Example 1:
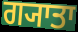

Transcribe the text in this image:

ਗ੍ਯਾਤਾ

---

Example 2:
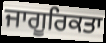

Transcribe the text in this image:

ਜਾਗੂਰਿਕਤਾ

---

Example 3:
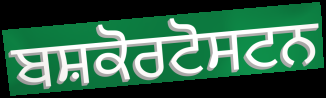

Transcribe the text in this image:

ਬਸ਼ਕੋਰਟੋਸਟਨ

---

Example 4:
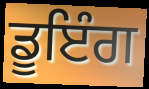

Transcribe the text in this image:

ਡੂਇੰਗ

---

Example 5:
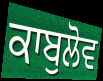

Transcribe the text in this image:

ਕਾਬੁਲੋਵ